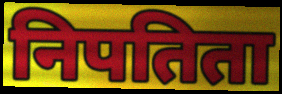
निपतिता